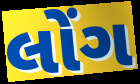
લોંગ